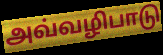
அவ்வழிபாடு